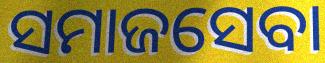
ସମାଜସେବା